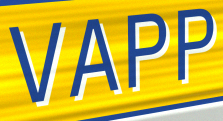
VAPP